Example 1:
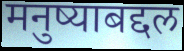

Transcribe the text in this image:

मनुष्याबद्दल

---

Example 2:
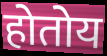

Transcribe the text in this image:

होतोय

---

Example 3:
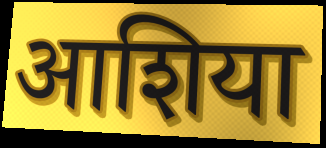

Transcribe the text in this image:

आशिया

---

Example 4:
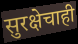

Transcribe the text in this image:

सुरक्षेचाही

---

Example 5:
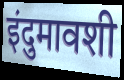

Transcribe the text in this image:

इंदुमावशी